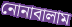
নোনাবালাম